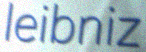
leibniz